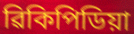
ৱিকিপিডিয়া